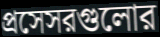
প্রসেসরগুলোর